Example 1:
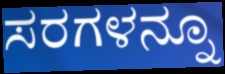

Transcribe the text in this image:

ಸರಗಳನ್ನೂ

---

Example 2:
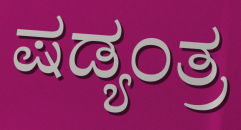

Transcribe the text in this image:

ಷಡ್ಯಂತ್ರ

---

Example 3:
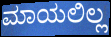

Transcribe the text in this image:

ಮಾಯಲಿಲ್ಲ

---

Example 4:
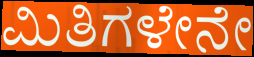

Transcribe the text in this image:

ಮಿತಿಗಳೇನೇ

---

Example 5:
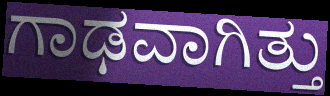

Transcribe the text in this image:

ಗಾಢವಾಗಿತ್ತು